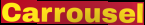
Carrousel